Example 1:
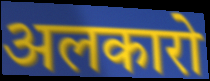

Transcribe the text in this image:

अलकारो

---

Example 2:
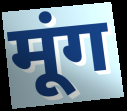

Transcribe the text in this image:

मूंग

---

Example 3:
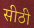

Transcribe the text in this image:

सीठी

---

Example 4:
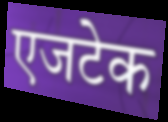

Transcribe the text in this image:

एजटेक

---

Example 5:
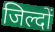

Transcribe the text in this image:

जिल्दों